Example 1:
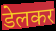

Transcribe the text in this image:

डेलकर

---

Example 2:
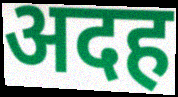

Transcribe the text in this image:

अदह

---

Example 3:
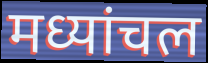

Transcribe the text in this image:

मध्यांचल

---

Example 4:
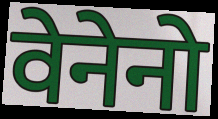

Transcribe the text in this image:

वेनेनो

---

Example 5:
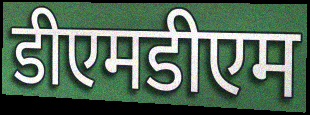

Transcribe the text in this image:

डीएमडीएम